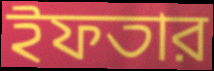
ইফতার